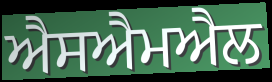
ਐਸਐਮਐਲ